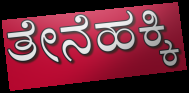
ತೇನೆಹಕ್ಕಿ